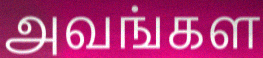
அவங்கள